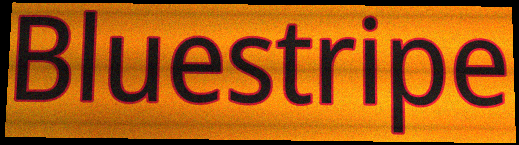
Bluestripe